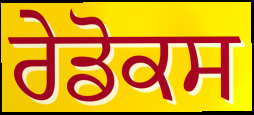
ਰੇਡੋਕਸ